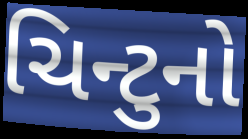
ચિન્ટુનો